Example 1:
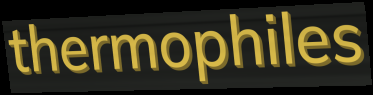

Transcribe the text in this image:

thermophiles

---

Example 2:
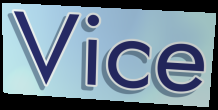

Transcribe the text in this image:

Vice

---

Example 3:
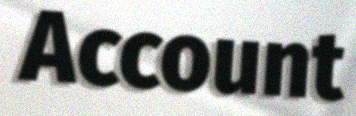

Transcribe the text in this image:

Account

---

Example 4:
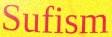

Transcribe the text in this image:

Sufism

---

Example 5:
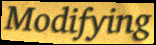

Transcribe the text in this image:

Modifying